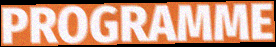
PROGRAMME